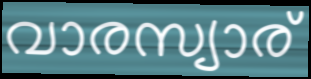
വാരസ്യാര്